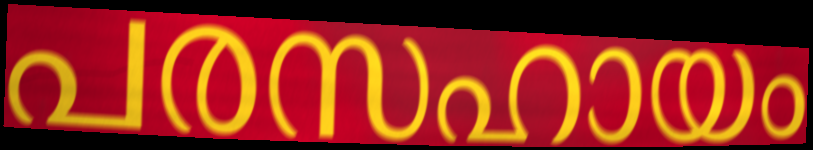
പരസഹായം